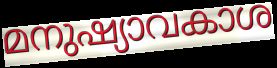
മനുഷ്യാവകാശ